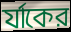
র্যাকের